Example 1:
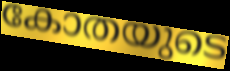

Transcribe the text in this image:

കോതയുടെ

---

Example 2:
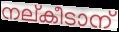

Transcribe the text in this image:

നല്കീടാന്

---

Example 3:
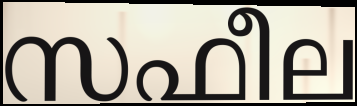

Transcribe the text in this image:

സഫീല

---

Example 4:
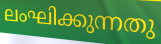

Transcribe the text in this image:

ലംഘിക്കുന്നതു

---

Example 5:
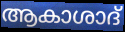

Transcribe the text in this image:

ആകാശാദ്